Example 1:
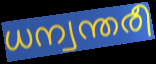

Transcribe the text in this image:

ധന്വന്തരീ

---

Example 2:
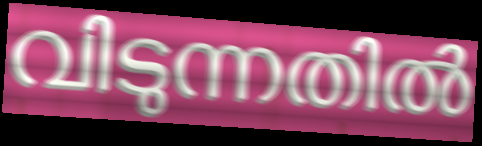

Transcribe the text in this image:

വിടുന്നതിൽ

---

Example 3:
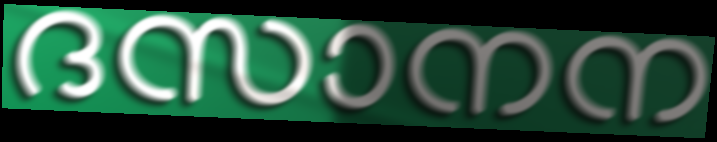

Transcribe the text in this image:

ദസാനന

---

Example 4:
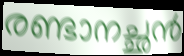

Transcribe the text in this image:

രണ്ടാനച്ഛൻ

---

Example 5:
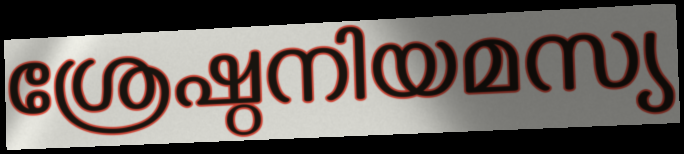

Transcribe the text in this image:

ശ്രേഷ്ഠനിയമസ്യ